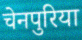
चेनपुरिया